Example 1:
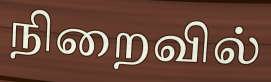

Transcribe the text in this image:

நிறைவில்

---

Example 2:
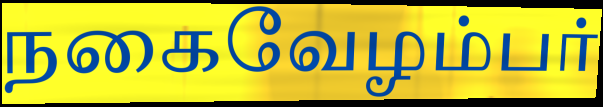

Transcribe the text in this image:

நகைவேழம்பர்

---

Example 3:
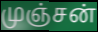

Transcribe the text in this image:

முஞ்சன்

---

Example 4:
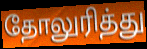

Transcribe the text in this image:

தோலுரித்து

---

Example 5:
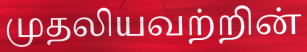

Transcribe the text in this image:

முதலியவற்றின்